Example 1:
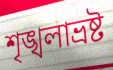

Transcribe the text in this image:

শৃঙ্খলাভ্রষ্ট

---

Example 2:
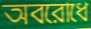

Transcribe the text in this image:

অবরোধে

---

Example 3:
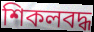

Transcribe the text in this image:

শিকলবদ্ধ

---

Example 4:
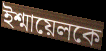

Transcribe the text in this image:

ইশ্মায়েলকে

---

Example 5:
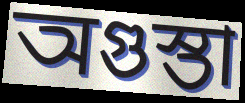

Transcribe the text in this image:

অগুস্তা